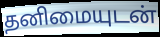
தனிமையுடன்